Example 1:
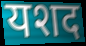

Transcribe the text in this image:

यशद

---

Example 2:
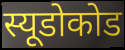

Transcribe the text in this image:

स्यूडोकोड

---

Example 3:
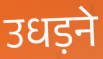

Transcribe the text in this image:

उधड़ने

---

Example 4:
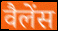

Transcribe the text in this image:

वैलेंस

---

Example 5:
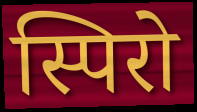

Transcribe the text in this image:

स्पिरो